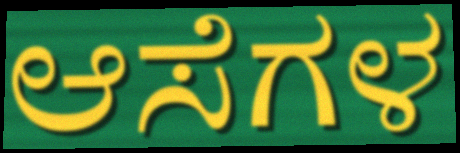
ಆಸೆಗಳ